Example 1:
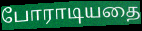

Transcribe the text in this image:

போராடியதை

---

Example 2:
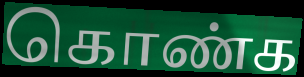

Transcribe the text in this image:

கொண்க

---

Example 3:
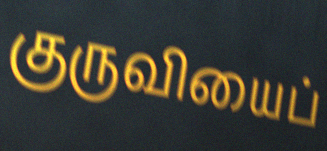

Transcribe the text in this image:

குருவியைப்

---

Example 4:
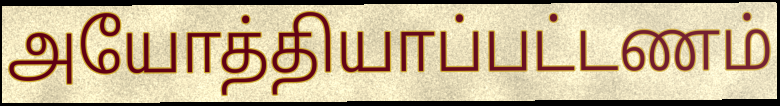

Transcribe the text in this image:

அயோத்தியாப்பட்டணம்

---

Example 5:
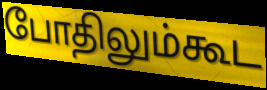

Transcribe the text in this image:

போதிலும்கூட